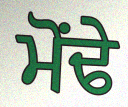
ਮੋਂਢੇ